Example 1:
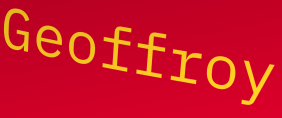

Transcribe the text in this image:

Geoffroy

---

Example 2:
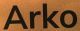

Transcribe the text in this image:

Arko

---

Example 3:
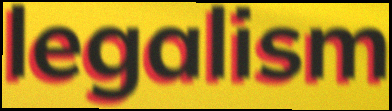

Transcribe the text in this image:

legalism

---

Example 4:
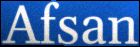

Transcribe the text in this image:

Afsan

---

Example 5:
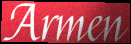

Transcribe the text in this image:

Armen